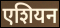
एशियन